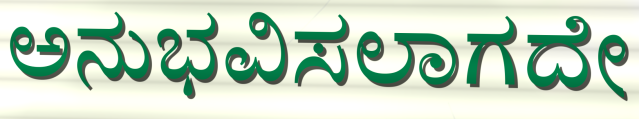
ಅನುಭವಿಸಲಾಗದೇ